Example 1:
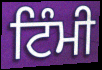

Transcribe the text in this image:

ਟਿੰਮੀ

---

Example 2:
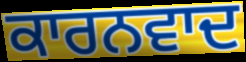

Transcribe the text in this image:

ਕਾਰਨਵਾਦ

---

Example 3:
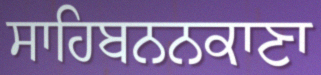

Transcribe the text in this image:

ਸਾਹਿਬਨਨਕਾਣਾ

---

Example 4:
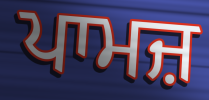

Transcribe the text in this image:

ਪਾਮਜ਼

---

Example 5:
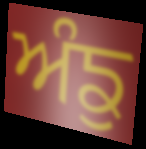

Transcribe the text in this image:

ਅੰਙੁ